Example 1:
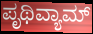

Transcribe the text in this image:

ಪೃಥಿವ್ಯಾಮ್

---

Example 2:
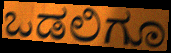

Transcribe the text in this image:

ಒಡಲಿಗೂ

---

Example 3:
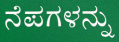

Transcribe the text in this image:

ನೆಪಗಳನ್ನು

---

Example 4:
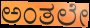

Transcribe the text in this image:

ಅಂತಲೇ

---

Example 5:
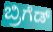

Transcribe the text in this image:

ಬ್ರಿಗೆಡ್